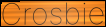
Crosbie